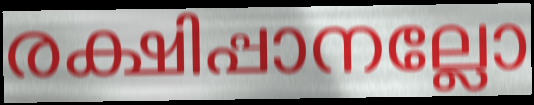
രക്ഷിപ്പാനല്ലോ